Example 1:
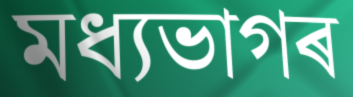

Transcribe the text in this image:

মধ্যভাগৰ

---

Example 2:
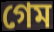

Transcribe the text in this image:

গেম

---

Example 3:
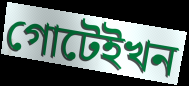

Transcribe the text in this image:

গোটেইখন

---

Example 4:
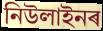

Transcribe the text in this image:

নিউলাইনৰ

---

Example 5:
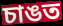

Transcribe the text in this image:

চাঙত